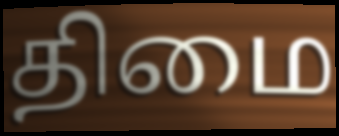
திமை